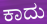
ಕಾದು